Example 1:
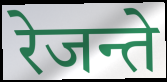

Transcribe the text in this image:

रेजन्ते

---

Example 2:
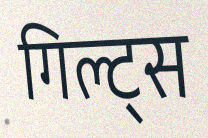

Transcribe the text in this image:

गिल्ट्स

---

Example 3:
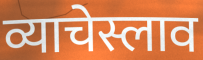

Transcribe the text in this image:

व्याचेस्लाव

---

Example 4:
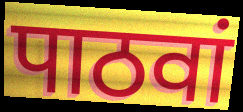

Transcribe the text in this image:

पाठवां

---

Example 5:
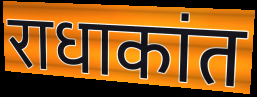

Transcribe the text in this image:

राधाकांत